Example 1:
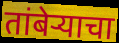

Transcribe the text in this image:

तांबेऱ्याचा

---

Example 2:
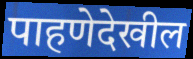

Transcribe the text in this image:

पाहणेदेखील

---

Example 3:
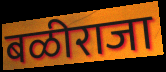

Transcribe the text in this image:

बळीराजा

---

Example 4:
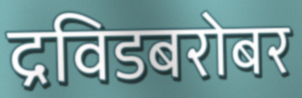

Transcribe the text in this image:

द्रविडबरोबर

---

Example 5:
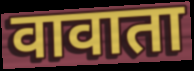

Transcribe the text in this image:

वावाता